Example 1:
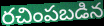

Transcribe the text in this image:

రచింపబడిన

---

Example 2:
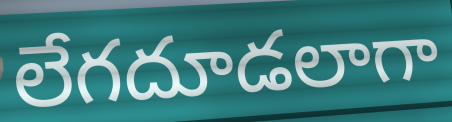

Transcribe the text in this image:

లేగదూడలాగా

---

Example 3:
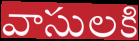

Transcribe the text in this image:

వాసులకి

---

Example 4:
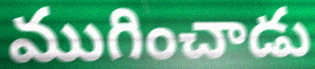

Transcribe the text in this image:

ముగించాడు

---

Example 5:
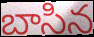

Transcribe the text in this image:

బాసిన